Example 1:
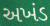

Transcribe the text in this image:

અખંડ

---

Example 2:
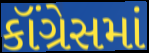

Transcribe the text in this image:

કૉંગ્રેસમાં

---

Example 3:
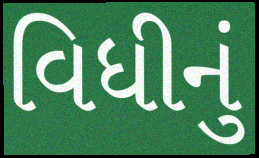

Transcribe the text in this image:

વિધીનું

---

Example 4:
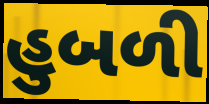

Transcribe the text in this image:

હુબળી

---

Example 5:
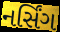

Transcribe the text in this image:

નર્સિંગ